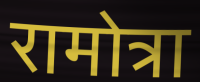
रामोत्रा